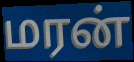
மரன்